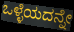
ಒಳ್ಳೆಯದನ್ನೇ